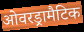
ओवरड्रामैटिक